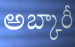
అబ్కారీ